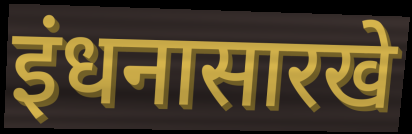
इंधनासारखे